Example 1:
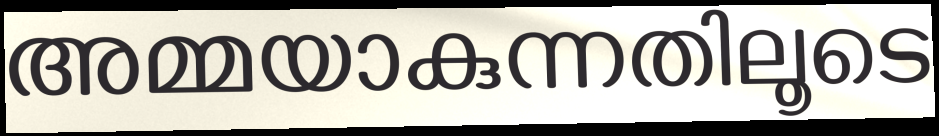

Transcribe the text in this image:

അമ്മയാകുന്നതിലൂടെ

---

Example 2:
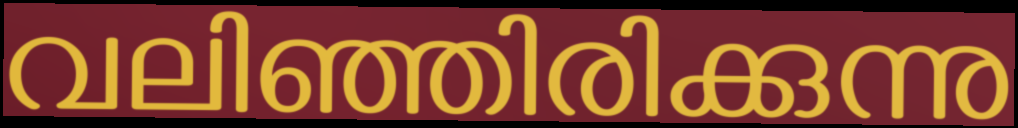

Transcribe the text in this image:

വലിഞ്ഞിരിക്കുന്നു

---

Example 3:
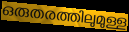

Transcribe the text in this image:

ഒരുതരത്തിലുമുള്ള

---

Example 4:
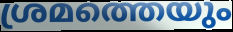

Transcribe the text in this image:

ശ്രമത്തെയും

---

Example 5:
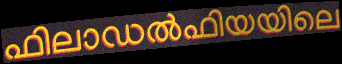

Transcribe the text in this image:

ഫിലാഡൽഫിയയിലെ